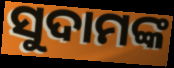
ସୁଦାମଙ୍କ